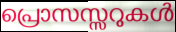
പ്രൊസസ്സറുകൾ